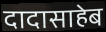
दादासाहेब